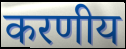
करणीय